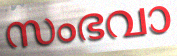
സംഭവാ